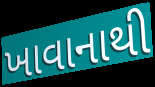
ખાવાનાથી